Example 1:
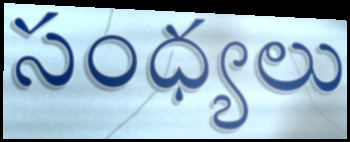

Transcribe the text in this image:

సంధ్యలు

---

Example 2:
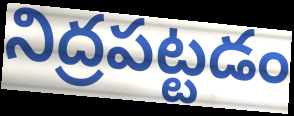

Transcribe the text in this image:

నిద్రపట్టడం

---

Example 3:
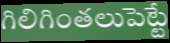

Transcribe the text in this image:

గిలిగింతలుపెట్టే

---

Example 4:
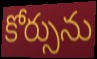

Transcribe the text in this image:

కోర్సును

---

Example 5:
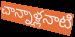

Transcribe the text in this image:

చాన్నాళ్లనాటి